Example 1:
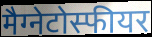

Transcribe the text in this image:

मैग्नेटोस्फीयर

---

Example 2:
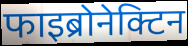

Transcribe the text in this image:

फाइब्रोनेक्टिन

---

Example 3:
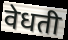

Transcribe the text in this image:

वेधती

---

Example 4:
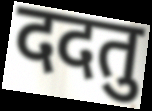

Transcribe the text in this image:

ददतु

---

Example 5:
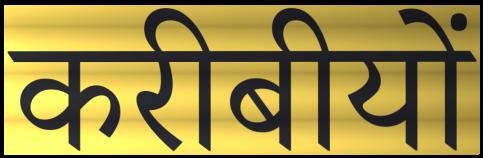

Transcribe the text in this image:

करीबीयों